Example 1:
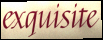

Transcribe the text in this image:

exquisite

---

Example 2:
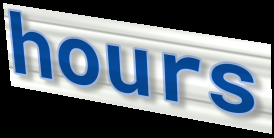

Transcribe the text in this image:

hours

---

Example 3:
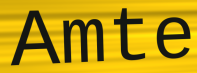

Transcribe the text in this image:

Amte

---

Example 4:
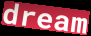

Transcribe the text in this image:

dream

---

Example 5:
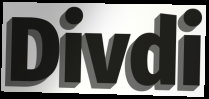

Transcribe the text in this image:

Divdi